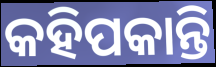
କହିପକାନ୍ତି